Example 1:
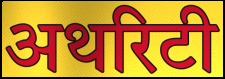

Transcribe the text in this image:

अथरिटी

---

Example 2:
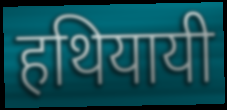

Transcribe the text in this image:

हथियायी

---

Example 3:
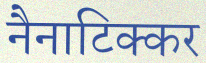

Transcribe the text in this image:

नैनाटिक्कर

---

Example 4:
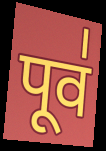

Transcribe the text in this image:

पूव॑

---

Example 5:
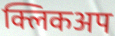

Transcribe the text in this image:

क्लिकअप